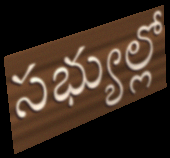
సభ్యుల్లో